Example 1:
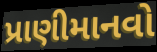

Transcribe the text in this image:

પ્રાણીમાનવો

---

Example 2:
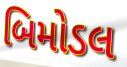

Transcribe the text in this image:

બિમોડલ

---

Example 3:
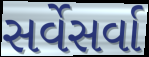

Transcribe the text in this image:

સર્વેસર્વા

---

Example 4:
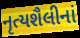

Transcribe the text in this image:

નૃત્યશૈલીનાં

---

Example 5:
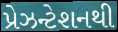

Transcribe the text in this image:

પ્રેઝન્ટેશનથી